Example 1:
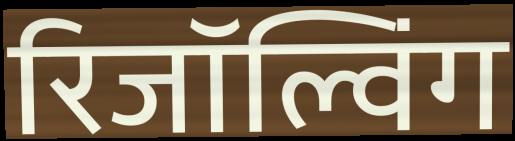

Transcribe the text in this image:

रिजॉल्विंग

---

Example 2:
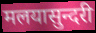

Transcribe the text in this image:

मलयासुन्दरी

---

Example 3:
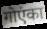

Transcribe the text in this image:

गोएंका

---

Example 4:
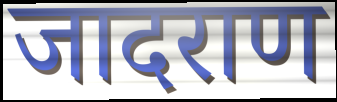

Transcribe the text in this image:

जादराण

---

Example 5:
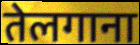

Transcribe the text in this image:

तेलगाना